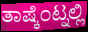
ತಾಷ್ಕೆಂಟ್ನಲ್ಲಿ